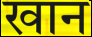
खान